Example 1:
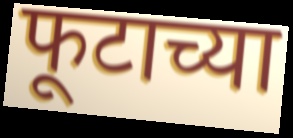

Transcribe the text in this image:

फूटाच्या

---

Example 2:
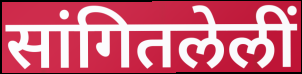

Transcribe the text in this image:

सांगितलेलीं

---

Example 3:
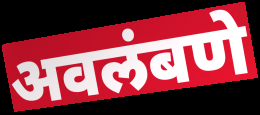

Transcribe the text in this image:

अवलंबणे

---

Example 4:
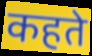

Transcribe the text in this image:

कहते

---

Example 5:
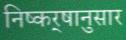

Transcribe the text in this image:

निष्कर्षानुसार